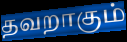
தவறாகும்